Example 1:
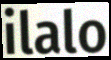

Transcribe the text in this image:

ilalo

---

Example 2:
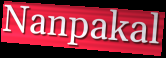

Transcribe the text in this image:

Nanpakal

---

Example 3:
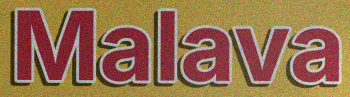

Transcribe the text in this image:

Malava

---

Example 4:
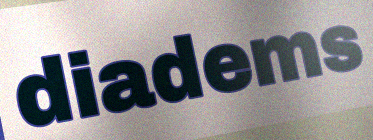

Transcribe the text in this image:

diadems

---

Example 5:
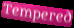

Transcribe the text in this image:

Tempered